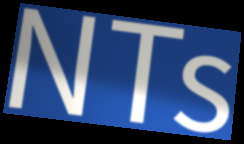
NTs